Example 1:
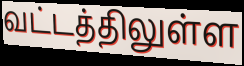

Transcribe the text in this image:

வட்டத்திலுள்ள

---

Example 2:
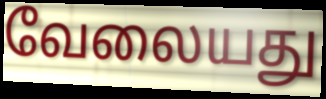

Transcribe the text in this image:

வேலையது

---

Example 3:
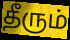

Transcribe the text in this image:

தீரும்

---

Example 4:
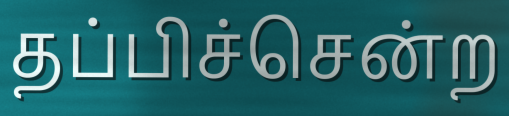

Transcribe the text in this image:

தப்பிச்சென்ற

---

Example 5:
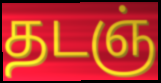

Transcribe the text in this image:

தடஞ்